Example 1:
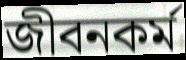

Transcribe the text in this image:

জীবনকর্ম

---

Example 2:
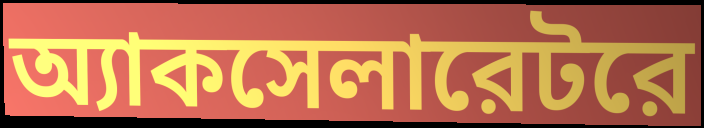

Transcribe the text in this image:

অ্যাকসেলারেটরে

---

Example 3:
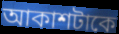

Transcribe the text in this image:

আকাশটাকে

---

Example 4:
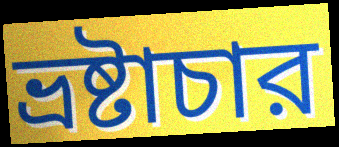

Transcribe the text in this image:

ভ্রষ্টাচার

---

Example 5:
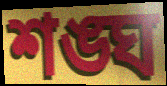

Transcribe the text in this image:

শঙ্ঘ